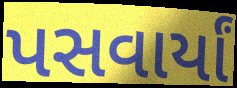
પસવાર્યાં